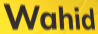
Wahid